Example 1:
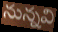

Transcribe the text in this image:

నున్నవి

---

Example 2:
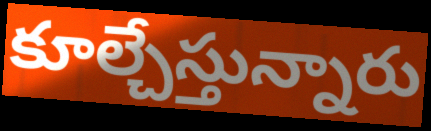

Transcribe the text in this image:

కూల్చేస్తున్నారు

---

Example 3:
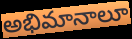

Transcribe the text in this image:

అభిమానాలూ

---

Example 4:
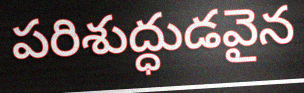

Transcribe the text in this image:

పరిశుద్ధుడవైన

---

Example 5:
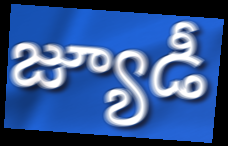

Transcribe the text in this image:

జ్యూడీ